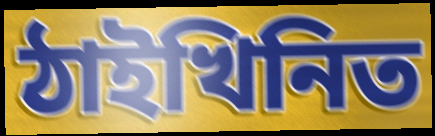
ঠাইখিনিত